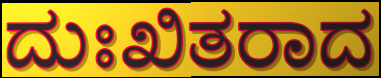
ದುಃಖಿತರಾದ